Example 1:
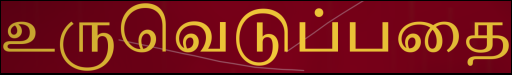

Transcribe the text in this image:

உருவெடுப்பதை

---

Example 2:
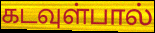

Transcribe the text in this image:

கடவுள்பால்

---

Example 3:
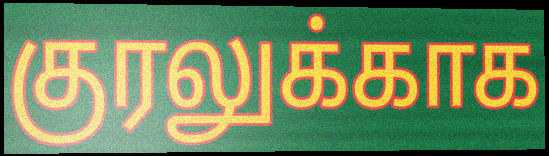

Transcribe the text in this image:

குரலுக்காக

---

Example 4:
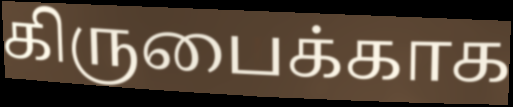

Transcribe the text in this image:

கிருபைக்காக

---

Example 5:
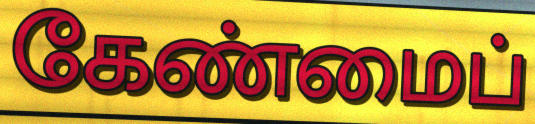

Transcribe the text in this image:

கேண்மைப்